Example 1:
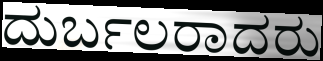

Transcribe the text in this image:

ದುರ್ಬಲರಾದರು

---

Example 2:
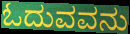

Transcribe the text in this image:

ಓದುವವನು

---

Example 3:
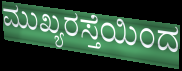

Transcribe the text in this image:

ಮುಖ್ಯರಸ್ತೆಯಿಂದ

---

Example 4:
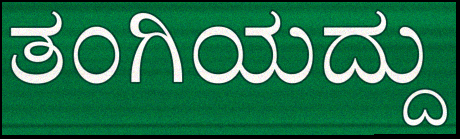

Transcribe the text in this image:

ತಂಗಿಯದ್ದು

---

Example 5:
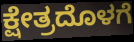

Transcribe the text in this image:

ಕ್ಷೇತ್ರದೊಳಗೆ